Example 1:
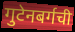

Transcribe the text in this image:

गुटेनबर्गची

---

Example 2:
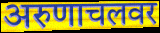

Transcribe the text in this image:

अरुणाचलवर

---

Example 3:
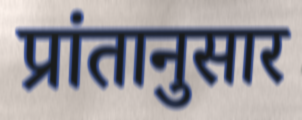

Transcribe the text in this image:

प्रांतानुसार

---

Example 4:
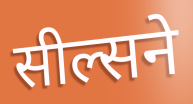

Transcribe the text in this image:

सील्सने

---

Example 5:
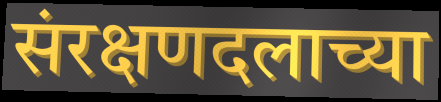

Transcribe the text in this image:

संरक्षणदलाच्या